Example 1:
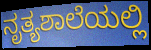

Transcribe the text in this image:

ನೃತ್ಯಶಾಲೆಯಲ್ಲಿ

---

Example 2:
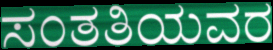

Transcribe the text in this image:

ಸಂತತಿಯವರ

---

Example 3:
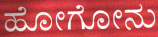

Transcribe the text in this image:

ಹೋಗೋನು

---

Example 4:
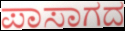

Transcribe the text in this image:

ಪಾಸಾಗದ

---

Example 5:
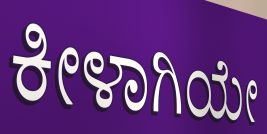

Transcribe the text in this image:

ಕೀಳಾಗಿಯೇ